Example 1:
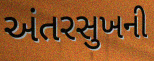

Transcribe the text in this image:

અંતરસુખની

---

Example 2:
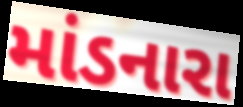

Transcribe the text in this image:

માંડનારા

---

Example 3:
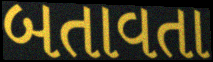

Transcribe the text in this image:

બતાવતા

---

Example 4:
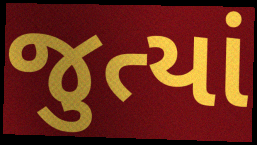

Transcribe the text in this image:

જુત્યાં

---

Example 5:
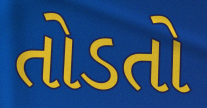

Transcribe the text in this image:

તોડતો